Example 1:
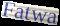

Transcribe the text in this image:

Fatwa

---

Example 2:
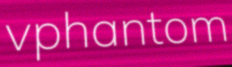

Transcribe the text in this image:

vphantom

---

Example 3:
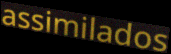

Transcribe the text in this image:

assimilados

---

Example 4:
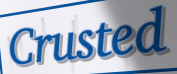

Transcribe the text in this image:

Crusted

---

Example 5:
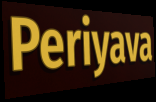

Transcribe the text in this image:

Periyava